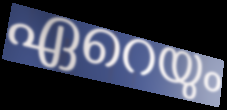
ഏറെയും